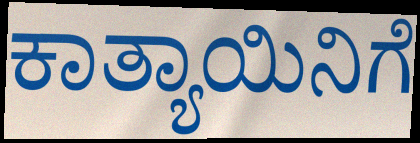
ಕಾತ್ಯಾಯಿನಿಗೆ